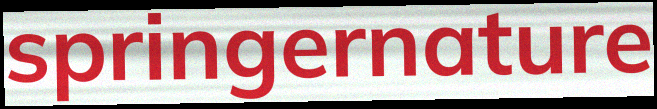
springernature